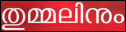
തുമ്മലിനും